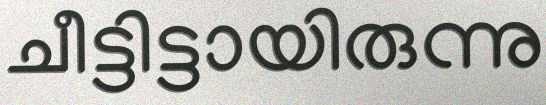
ചീട്ടിട്ടായിരുന്നു